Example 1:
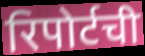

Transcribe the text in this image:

रिपोर्टची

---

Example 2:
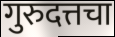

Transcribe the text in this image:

गुरुदत्तचा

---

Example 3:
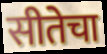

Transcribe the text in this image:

सीतेचा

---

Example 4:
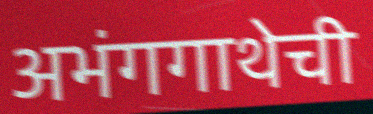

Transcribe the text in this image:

अभंगगाथेची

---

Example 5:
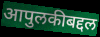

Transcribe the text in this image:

आपुलकीबद्दल